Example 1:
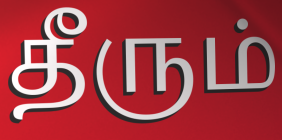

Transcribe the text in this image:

தீரும்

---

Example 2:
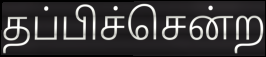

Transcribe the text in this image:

தப்பிச்சென்ற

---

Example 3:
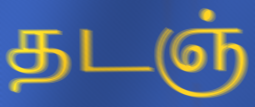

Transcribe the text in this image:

தடஞ்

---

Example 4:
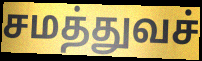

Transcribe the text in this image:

சமத்துவச்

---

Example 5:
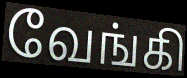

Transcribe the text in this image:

வேங்கி